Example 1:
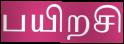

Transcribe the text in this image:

பயிறசி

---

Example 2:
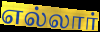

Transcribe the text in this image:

எல்லார்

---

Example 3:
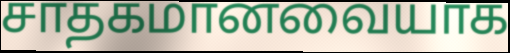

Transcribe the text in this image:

சாதகமானவையாக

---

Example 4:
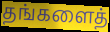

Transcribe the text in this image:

தங்களைத்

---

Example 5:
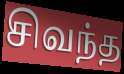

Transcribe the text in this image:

சிவந்த